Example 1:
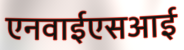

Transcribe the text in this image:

एनवाईएसआई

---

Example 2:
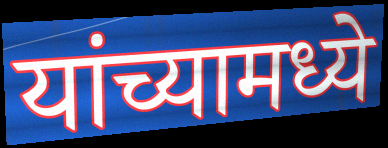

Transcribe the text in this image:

यांच्यामध्ये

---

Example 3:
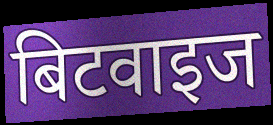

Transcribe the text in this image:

बिटवाइज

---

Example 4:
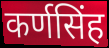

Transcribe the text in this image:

कर्णसिंह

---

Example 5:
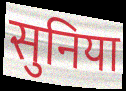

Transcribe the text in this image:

सुनिया